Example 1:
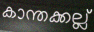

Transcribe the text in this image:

കാന്തക്കല്ല്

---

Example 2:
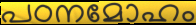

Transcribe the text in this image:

പഠനമോഹം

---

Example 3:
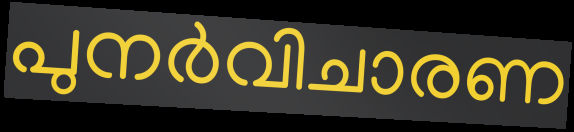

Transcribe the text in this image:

പുനർവിചാരണ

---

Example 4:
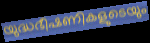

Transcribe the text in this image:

യുദ്ധഭീഷണികളുടെയും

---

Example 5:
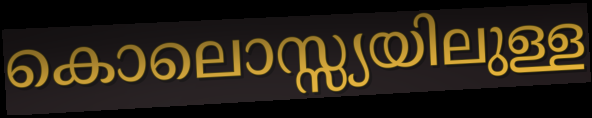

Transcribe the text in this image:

കൊലൊസ്സ്യയിലുള്ള